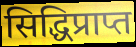
सिद्धिप्राप्त